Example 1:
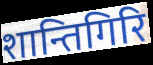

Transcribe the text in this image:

शान्तिगिरि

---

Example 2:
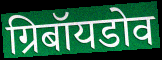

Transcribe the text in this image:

ग्रिबॉयडोव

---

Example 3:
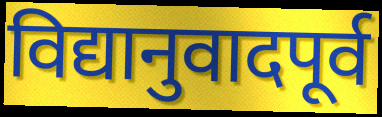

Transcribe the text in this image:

विद्यानुवादपूर्व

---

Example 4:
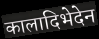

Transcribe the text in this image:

कालादिभेदेन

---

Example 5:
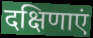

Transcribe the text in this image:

दक्षिणाएं